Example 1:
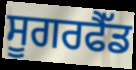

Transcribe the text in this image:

ਸੂਗਰਫੈੱਡ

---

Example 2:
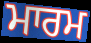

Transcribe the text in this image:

ਮਾਰਮ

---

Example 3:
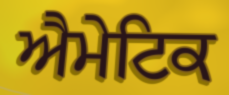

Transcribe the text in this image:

ਐਮੇਟਿਕ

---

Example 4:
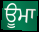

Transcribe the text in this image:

ਊਮਾ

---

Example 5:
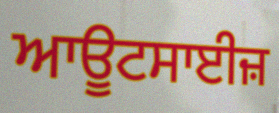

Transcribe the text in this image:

ਆਊਟਸਾਈਜ਼